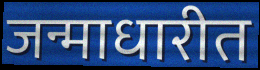
जन्माधारीत